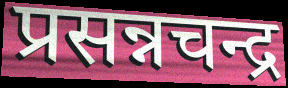
प्रसन्नचन्द्र